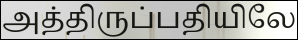
அத்திருப்பதியிலே